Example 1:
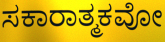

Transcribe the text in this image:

ಸಕಾರಾತ್ಮಕವೋ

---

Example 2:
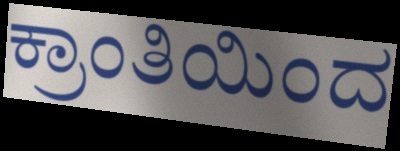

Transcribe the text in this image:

ಕ್ರಾಂತಿಯಿಂದ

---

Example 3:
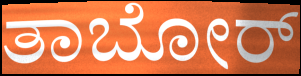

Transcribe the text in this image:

ತಾಬೋರ್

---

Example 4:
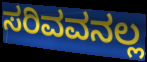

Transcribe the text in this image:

ಸರಿವವನಲ್ಲ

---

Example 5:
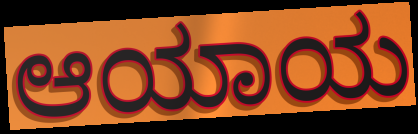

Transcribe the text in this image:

ಆಯಾಯ